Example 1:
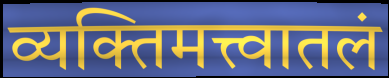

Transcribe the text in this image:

व्यक्तिमत्त्वातलं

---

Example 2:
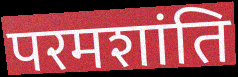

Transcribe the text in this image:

परमशांति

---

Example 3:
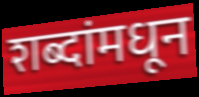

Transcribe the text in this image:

शब्दांमधून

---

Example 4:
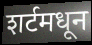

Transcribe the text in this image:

शर्टमधून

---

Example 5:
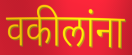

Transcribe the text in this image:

वकीलांना